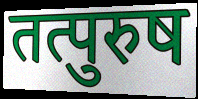
तत्पुरुष